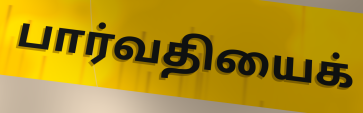
பார்வதியைக்